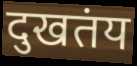
दुखतंय